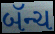
બૅન્ચ